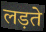
लड़ते